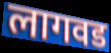
लागवड